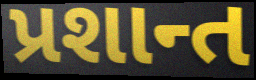
પ્રશાન્ત